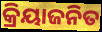
କ୍ରିୟାଜନିତ